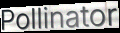
Pollinator